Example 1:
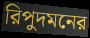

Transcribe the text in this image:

রিপুদমনের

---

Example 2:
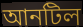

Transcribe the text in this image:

আনটিল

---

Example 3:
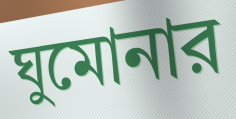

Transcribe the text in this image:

ঘুমোনার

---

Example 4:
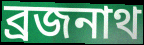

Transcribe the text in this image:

ব্রজনাথ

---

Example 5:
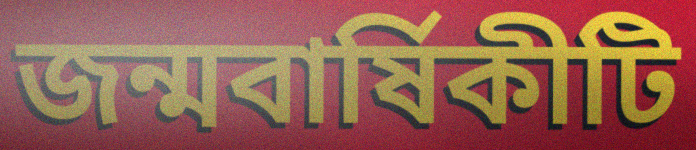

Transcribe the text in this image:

জন্মবার্ষিকীটি